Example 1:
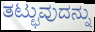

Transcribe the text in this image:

ತಟ್ಟುವುದನ್ನು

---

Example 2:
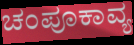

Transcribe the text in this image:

ಚಂಪೂಕಾವ್ಯ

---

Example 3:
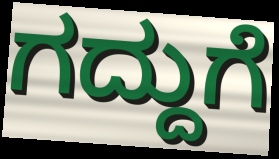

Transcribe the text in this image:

ಗದ್ದುಗೆ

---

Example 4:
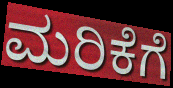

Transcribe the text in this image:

ಮರಿಕೆಗೆ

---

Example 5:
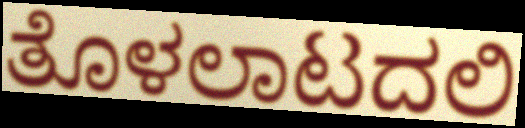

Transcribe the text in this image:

ತೊಳಲಾಟದಲಿ